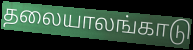
தலையாலங்காடு